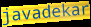
javadekar